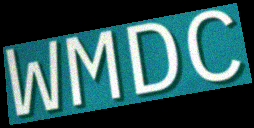
WMDC